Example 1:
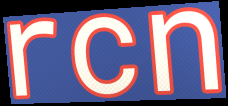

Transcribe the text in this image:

rcn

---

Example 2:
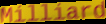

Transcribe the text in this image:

Milliard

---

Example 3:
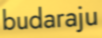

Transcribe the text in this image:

budaraju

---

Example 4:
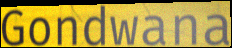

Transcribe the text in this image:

Gondwana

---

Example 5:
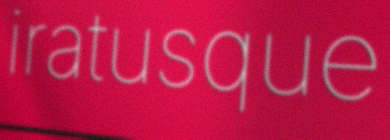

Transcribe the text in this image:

iratusque